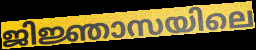
ജിജ്ഞാസയിലെ